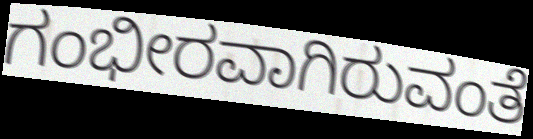
ಗಂಭೀರವಾಗಿರುವಂತೆ